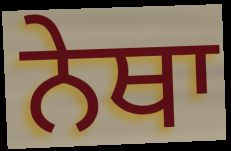
ਨੇਥਾ